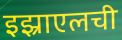
इझ्राएलची